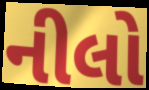
નીલો